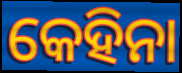
କେହିନା